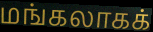
மங்கலாகக்